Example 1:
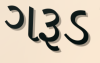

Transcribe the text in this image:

ગરૂડ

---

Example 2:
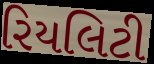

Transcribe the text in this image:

રિયલિટી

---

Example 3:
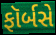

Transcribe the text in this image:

ફૉર્બસે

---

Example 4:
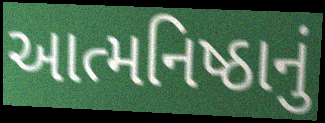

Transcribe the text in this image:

આત્મનિષ્ઠાનું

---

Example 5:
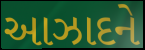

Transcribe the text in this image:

આઝાદને